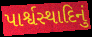
પાર્શ્વસ્થાદિનું